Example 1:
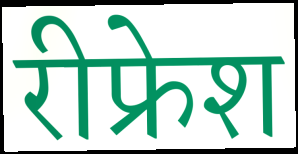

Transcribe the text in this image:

रीफ्रेश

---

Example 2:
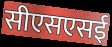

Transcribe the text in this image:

सीएसएसई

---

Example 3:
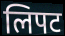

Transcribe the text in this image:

लिपट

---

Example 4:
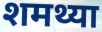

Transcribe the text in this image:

शमथ्या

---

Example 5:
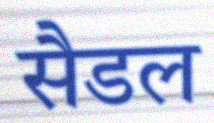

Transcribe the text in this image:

सैडल